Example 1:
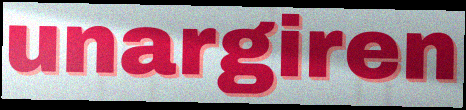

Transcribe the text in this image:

unargiren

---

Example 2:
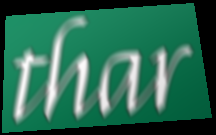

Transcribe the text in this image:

thar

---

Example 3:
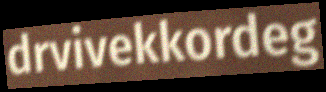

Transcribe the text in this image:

drvivekkordeg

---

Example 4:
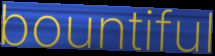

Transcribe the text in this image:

bountiful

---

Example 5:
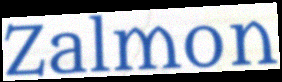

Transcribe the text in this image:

Zalmon